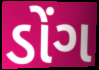
ડોંગ